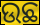
ଉଛ